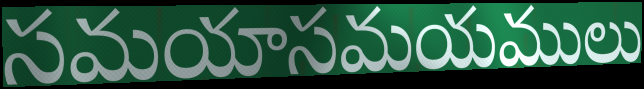
సమయాసమయములు